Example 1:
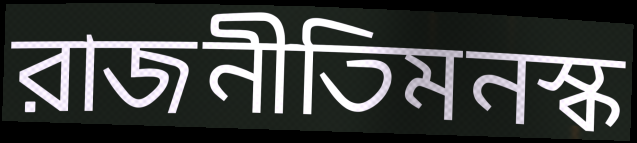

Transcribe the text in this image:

রাজনীতিমনস্ক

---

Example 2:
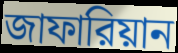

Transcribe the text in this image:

জাফারিয়ান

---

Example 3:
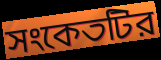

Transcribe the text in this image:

সংকেতটির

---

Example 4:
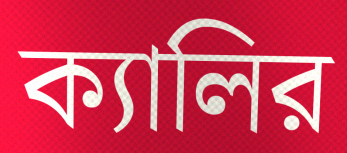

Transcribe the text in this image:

ক্যালির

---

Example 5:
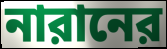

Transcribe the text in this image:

নারানের